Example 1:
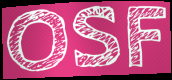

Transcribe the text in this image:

OSF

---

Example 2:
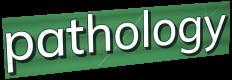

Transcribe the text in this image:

pathology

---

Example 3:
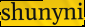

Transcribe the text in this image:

shunyni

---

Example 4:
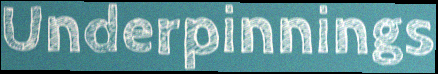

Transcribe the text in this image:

Underpinnings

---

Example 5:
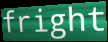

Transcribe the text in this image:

fright